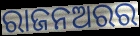
ରାଜନଅରର